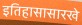
इतिहासासारखे